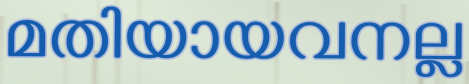
മതിയായവനല്ല